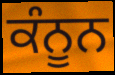
ਕੰਨੂਨ